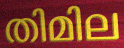
തിമില